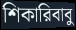
শিকারিবাবু